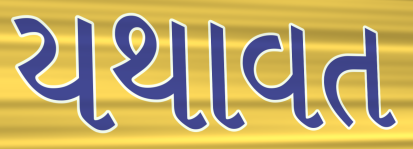
યથાવત